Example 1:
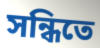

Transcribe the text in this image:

সন্ধিতে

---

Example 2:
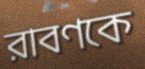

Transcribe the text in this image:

রাবণকে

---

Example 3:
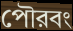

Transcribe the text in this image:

পৌরবং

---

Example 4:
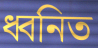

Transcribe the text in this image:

ধ্বনিত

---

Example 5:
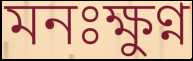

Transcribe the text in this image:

মনঃক্ষুণ্ন